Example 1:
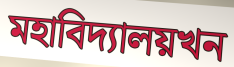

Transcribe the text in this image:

মহাবিদ্যালয়খন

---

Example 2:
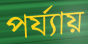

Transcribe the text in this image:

পৰ্য্যায়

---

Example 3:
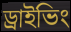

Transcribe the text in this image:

ড্ৰাইভিং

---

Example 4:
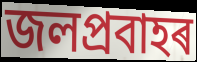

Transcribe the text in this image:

জলপ্ৰবাহৰ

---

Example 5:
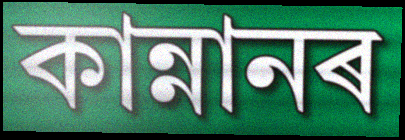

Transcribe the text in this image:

কান্নানৰ